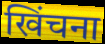
खिंचना